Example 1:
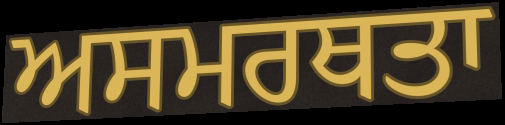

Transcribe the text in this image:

ਅਸਮਰਥਤਾ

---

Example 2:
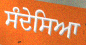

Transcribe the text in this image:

ਸੰਦੇਸਿਆ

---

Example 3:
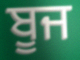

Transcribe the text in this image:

ਬੂਜ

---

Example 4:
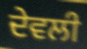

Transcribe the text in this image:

ਦੇਵਲੀ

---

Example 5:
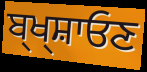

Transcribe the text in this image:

ਬ੍ਖ੍ਸ਼ਾਓਣ